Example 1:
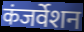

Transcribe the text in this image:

कंजर्वेशन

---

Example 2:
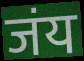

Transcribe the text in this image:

जंय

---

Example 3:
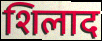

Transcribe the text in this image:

शिलाद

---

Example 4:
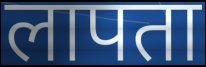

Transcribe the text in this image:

लापता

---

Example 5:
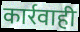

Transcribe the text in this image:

कार्रवाही